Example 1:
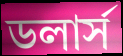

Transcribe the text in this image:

ডলার্স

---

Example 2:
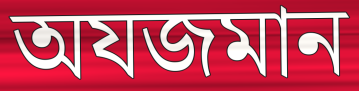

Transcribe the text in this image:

অযজমান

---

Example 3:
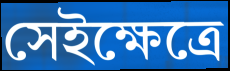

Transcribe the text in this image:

সেইক্ষেত্রে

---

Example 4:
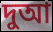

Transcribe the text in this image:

দুআ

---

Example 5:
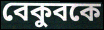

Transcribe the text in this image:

বেকুবকে